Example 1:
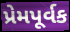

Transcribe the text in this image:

પ્રેમપૂર્વક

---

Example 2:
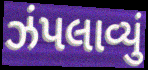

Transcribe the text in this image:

ઝંપલાવ્યું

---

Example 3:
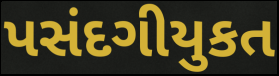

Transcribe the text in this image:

પસંદગીયુકત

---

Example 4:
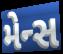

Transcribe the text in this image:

મેન્સ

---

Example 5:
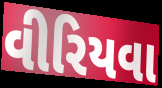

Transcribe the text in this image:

વીરિયવા